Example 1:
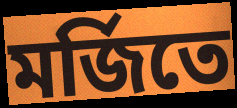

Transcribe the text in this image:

মর্জিতে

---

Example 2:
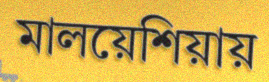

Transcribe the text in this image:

মালয়েশিয়ায়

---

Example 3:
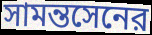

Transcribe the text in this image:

সামন্তসেনের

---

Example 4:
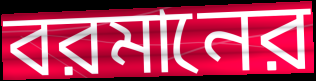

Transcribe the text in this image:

বরমানের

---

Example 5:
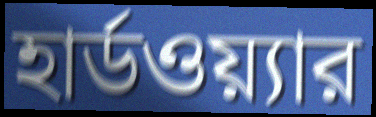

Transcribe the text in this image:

হার্ডওয়্যার